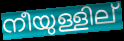
നീയുള്ളില്